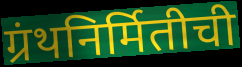
ग्रंथनिर्मितीची